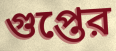
গুপ্তের